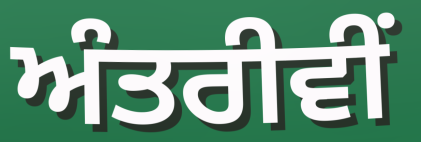
ਅੰਤਰੀਵੀਂ